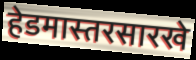
हेडमास्तरसारखे